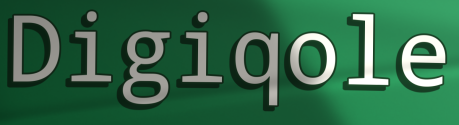
Digiqole